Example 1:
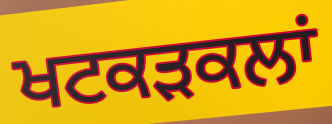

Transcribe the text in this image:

ਖਟਕੜਕਲਾਂ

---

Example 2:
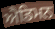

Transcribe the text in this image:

ਐਡਿਮਨ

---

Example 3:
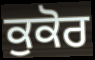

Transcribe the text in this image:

ਕੁਕੋਰ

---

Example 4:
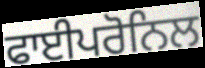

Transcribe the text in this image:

ਫਾਈਪਰੋਨਿਲ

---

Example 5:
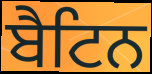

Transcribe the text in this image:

ਬੈਟਿਨ